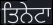
ਤਿਨੇਟਾ